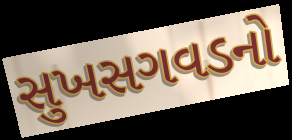
સુખસગવડનો